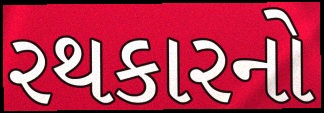
રથકારનો